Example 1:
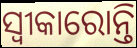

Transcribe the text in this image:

ସ୍ଵୀକାରୋନ୍ତି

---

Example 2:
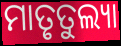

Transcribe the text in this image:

ମାତୃତୁଲ୍ୟା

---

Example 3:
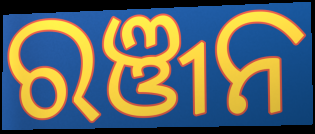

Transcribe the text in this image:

ରଞ୍ଜନ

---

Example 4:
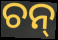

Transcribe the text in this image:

ଚନ୍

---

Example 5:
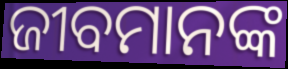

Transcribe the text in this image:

ଜୀବମାନଙ୍କ